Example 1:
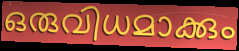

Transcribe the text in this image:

ഒരുവിധമാക്കും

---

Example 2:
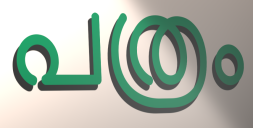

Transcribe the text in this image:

പത്രം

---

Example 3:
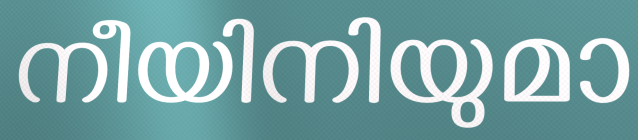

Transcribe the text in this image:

നീയിനിയുമാ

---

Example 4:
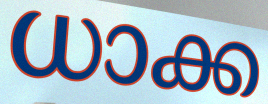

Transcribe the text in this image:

ധാക്ക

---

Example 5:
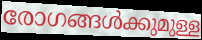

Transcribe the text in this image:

രോഗങ്ങൾക്കുമുള്ള